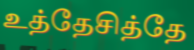
உத்தேசித்தே